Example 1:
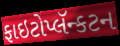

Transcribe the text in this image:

ફાઇટોપ્લૅન્કટન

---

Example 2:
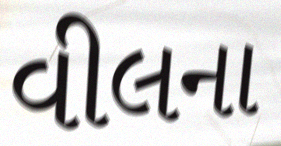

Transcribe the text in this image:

વીલના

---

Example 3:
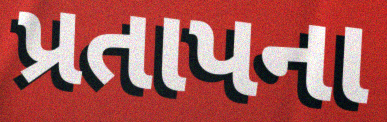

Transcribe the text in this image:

પ્રતાપના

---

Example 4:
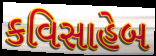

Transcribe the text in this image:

કવિસાહેબ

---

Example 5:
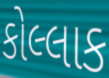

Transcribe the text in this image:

કોલ્લાક